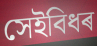
সেইবিধৰ